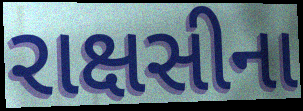
રાક્ષસીના